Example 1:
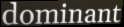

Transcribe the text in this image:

dominant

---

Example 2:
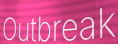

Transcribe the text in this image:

Outbreak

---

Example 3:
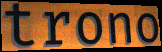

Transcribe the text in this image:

trono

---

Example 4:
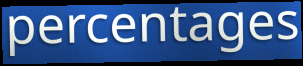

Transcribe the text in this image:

percentages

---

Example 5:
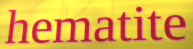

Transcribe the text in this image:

hematite